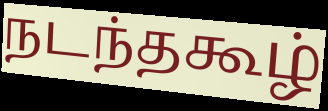
நடந்தகூழ்